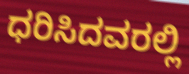
ಧರಿಸಿದವರಲ್ಲಿ